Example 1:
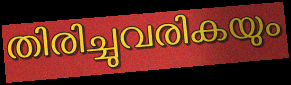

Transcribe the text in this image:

തിരിച്ചുവരികയും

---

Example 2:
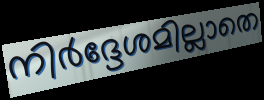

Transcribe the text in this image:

നിർദ്ദേശമില്ലാതെ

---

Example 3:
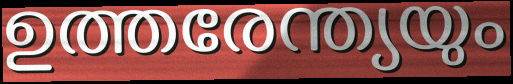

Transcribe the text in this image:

ഉത്തരേന്ത്യയും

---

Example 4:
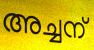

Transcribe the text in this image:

അച്ചന്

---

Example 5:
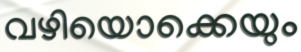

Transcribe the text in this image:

വഴിയൊക്കെയും